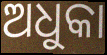
ଅଧୁକା